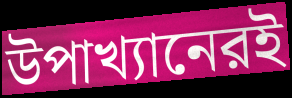
উপাখ্যানেরই